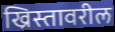
ख्रिस्तावरील